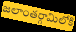
జలాంతర్గామిలోకి